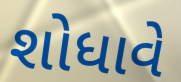
શોધાવે